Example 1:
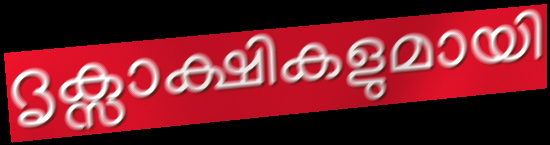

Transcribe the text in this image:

ദൃക്സാക്ഷികളുമായി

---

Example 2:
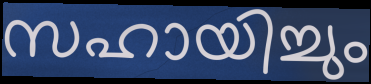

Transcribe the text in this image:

സഹായിച്ചും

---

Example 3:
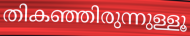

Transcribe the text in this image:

തികഞ്ഞിരുന്നുള്ളൂ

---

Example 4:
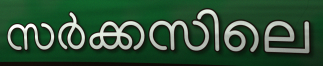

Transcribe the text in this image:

സർക്കസിലെ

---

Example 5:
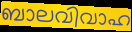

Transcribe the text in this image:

ബാലവിവാഹ